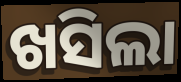
ଖସିଲା